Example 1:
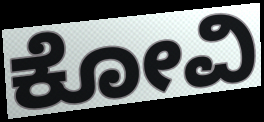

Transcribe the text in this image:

ಕೋವಿ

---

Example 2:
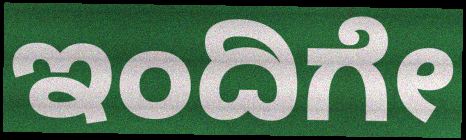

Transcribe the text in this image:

ಇಂದಿಗೇ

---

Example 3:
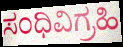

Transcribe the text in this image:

ಸಂಧಿವಿಗ್ರಹಿ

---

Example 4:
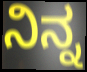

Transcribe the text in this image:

ನಿನ್ನ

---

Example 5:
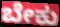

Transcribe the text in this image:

ಬೇಕು